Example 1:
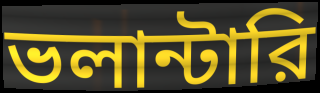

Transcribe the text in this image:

ভলান্টারি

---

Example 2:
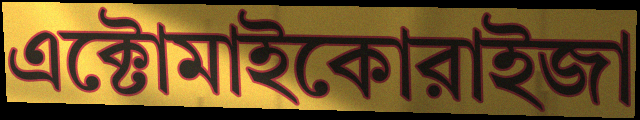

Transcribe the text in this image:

এক্টোমাইকোরাইজা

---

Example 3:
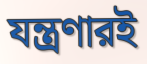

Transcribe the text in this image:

যন্ত্রণারই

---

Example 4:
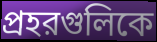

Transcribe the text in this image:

প্রহরগুলিকে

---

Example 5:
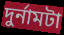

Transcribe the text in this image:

দুর্নামটা